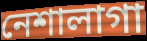
নেশালাগা